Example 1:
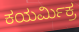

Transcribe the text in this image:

ಕಯರ್ಮಿಕ್ರ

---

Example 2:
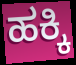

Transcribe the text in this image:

ಹಕ್ಕಿ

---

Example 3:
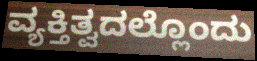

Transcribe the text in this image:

ವ್ಯಕ್ತಿತ್ವದಲ್ಲೊಂದು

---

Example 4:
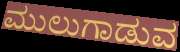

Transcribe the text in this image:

ಮುಲುಗಾಡುವ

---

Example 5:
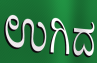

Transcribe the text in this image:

ಉಗಿದ